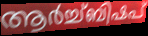
ആർച്ച്ബിഷപ്